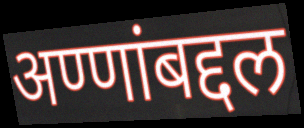
अण्णांबद्दल